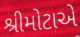
શ્રીમોટાએ